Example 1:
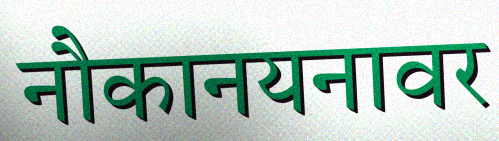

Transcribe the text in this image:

नौकानयनावर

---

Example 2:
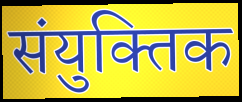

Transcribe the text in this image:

संयुक्‍तिक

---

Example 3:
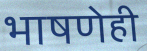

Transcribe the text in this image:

भाषणेही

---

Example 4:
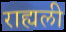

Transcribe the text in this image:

राह्यली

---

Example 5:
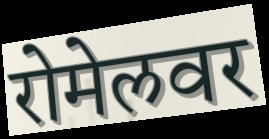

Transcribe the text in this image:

रोमेलवर